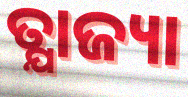
ତ୍ଯାଜ୍ୟା